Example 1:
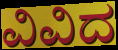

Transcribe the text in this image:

ವಿವಿದ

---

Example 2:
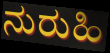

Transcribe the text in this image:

ನುರುಹಿ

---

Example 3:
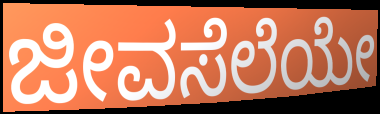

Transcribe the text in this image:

ಜೀವಸೆಲೆಯೇ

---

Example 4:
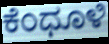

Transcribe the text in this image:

ಕೆಂಧೂಳಿ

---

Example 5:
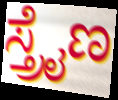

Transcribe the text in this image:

ಸ್ತ್ರೈಣ